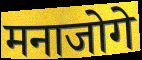
मनाजोगे